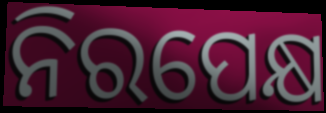
ନିରପେକ୍ଷ